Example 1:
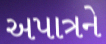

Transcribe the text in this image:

અપાત્રને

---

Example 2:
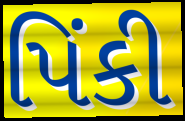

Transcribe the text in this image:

પિંકી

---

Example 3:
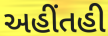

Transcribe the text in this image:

અહીંતહી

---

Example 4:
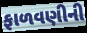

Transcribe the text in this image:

ફાળવણીની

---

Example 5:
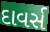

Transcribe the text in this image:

દાવર્સ